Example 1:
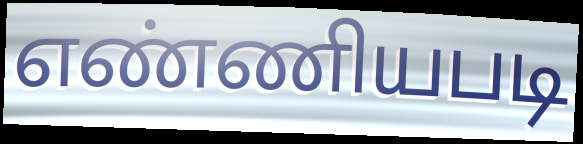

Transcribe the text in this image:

எண்ணியபடி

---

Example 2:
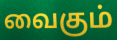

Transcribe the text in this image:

வைகும்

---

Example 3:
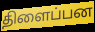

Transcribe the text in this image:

திளைப்பன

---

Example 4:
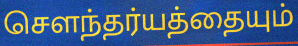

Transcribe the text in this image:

சௌந்தர்யத்தையும்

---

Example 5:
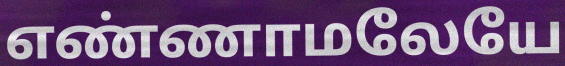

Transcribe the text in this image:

எண்ணாமலேயே